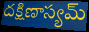
దక్షిణాస్యమ్